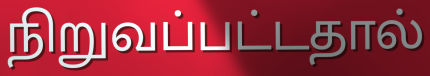
நிறுவப்பட்டதால்